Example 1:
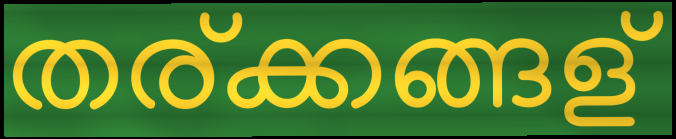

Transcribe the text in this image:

തര്ക്കങ്ങള്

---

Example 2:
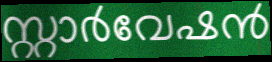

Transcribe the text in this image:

സ്റ്റാർവേഷൻ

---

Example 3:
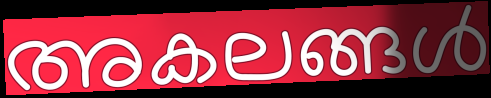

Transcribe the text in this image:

അകലങ്ങൾ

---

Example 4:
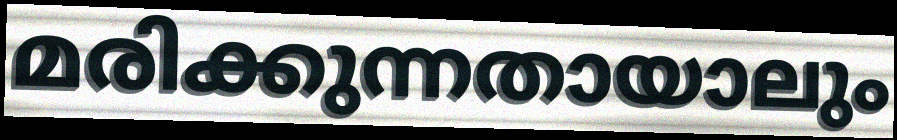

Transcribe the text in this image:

മരിക്കുന്നതായാലും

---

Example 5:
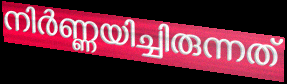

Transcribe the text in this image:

നിർണ്ണയിച്ചിരുന്നത്